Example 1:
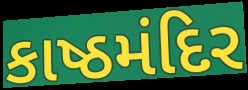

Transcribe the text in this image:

કાષ્ઠમંદિર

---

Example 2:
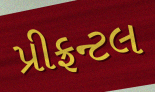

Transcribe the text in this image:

પ્રીફ્રન્ટલ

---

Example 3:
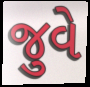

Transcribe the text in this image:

જુવે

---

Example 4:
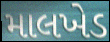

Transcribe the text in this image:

માલખેડ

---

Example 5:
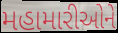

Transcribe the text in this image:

મહામારીઓને